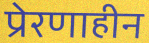
प्रेरणाहीन